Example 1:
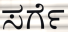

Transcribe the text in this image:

ಸರ್ಗೆ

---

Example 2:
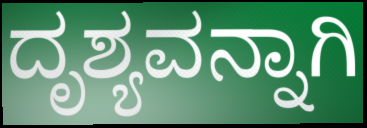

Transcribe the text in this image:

ದೃಶ್ಯವನ್ನಾಗಿ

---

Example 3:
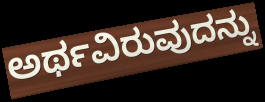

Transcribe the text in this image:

ಅರ್ಥವಿರುವುದನ್ನು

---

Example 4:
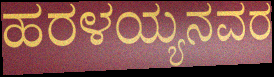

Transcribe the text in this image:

ಹರಳಯ್ಯನವರ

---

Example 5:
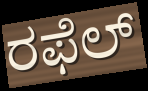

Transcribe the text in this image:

ರಫೆಲ್